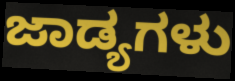
ಜಾಡ್ಯಗಳು